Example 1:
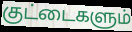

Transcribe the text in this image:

குட்டைகளும்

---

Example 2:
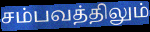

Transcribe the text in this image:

சம்பவத்திலும்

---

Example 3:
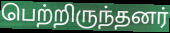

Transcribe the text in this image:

பெற்றிருந்தனர்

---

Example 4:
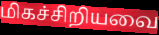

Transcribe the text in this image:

மிகச்சிறியவை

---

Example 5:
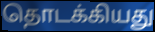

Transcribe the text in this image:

தொடக்கியது